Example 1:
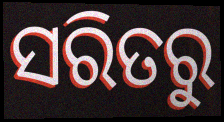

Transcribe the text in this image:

ସରିତରୁ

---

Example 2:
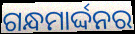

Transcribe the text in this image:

ଗନ୍ଧମାର୍ଦ୍ଦନର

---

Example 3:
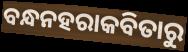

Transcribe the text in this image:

ବନ୍ଧନହରାକବିତାରୁ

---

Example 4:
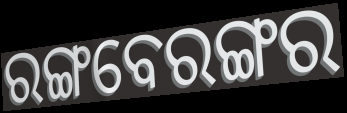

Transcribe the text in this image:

ରଙ୍ଗବେରଙ୍ଗର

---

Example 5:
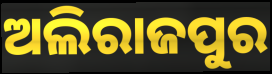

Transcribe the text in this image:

ଅଲିରାଜପୁର